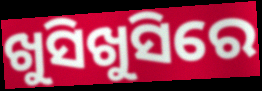
ଖୁସିଖୁସିରେ